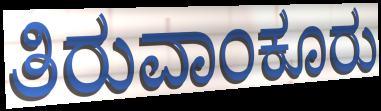
ತಿರುವಾಂಕೂರು